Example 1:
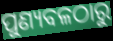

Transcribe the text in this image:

ପୁଣ୍ୟବଳଠାରୁ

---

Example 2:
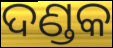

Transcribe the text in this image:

ଦଣ୍ଡକ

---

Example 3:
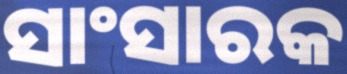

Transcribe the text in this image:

ସାଂସାରକ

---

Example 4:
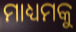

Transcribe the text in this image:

ମାଧ୍ୟମକୁ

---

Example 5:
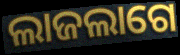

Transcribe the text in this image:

ଲାଜଲାଗେ